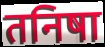
तनिषा